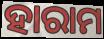
ହାରାମ